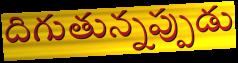
దిగుతున్నప్పుడు